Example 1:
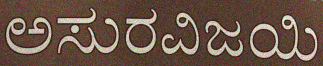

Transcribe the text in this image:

ಅಸುರವಿಜಯಿ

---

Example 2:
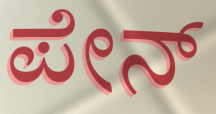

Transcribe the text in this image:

ಪೇನ್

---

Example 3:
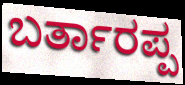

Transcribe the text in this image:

ಬರ್ತಾರಪ್ಪ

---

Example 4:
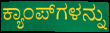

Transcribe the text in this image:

ಕ್ಯಾಂಪ್‍ಗಳನ್ನು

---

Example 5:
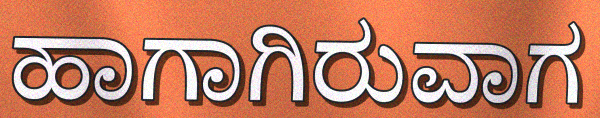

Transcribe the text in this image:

ಹಾಗಾಗಿರುವಾಗ